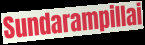
Sundarampillai